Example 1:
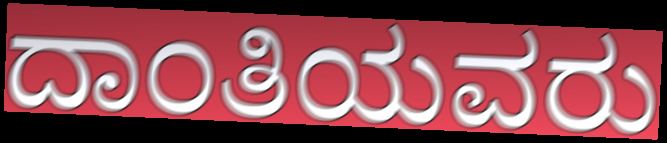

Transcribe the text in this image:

ದಾಂತಿಯವರು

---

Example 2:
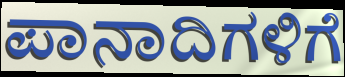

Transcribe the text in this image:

ಪಾನಾದಿಗಳಿಗೆ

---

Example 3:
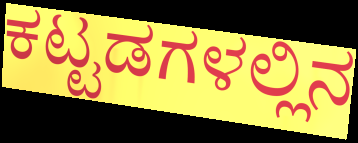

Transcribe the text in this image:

ಕಟ್ಟಡಗಳಲ್ಲಿನ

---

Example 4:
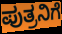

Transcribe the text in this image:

ಪುತ್ರನಿಗೆ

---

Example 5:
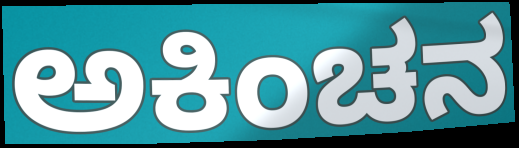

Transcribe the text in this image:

ಅಕಿಂಚನ